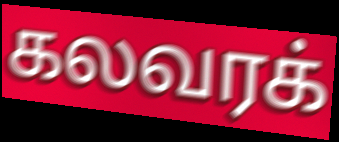
கலவரக்